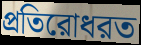
প্রতিরোধরত